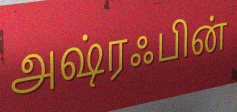
அஷ்ரஃபின்